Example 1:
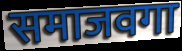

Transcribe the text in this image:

समाजवगा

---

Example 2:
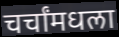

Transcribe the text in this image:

चर्चांमधला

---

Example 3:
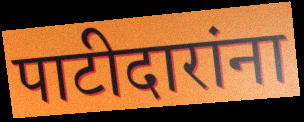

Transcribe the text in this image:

पाटीदारांना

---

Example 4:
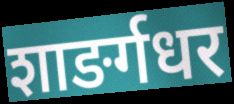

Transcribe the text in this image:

शाङर्गधर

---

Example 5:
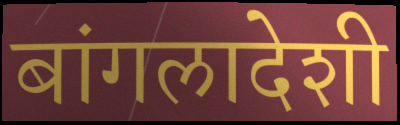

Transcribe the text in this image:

बांगलादेशी